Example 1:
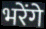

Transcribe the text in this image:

भरेंगे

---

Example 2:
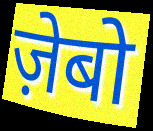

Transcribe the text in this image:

ज़ेबो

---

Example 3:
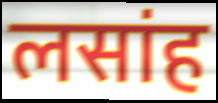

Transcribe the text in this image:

लसांह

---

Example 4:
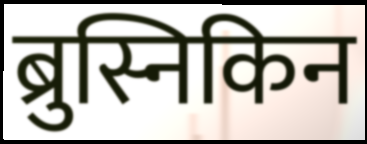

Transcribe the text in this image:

ब्रुस्निकिन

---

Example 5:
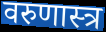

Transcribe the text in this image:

वरुणास्त्र